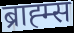
ब्राह्म्स